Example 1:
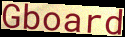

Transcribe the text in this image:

Gboard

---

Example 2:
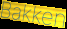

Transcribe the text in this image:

Bakken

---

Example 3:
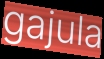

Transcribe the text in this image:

gajula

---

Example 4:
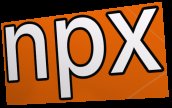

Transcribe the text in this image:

npx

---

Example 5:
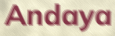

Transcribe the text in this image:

Andaya